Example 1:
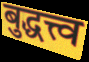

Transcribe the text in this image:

बुद्धत्त्व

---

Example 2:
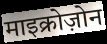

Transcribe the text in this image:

माइक्रोज़ोन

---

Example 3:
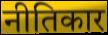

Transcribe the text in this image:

नीतिकार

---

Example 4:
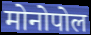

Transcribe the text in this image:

मोनोपोल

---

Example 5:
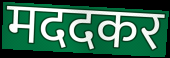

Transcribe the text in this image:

मददकर